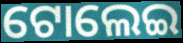
ଟୋଲେଇ